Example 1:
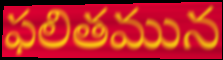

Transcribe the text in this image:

ఫలితమున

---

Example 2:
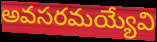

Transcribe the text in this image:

అవసరమయ్యేవి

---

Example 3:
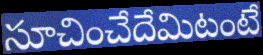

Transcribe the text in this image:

సూచించేదేమిటంటే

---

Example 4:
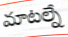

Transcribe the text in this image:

మాటల్నే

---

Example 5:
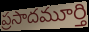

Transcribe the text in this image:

ప్రసాదమూర్తి